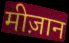
मीज़ान